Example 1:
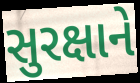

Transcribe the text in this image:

સુરક્ષાને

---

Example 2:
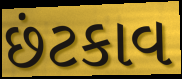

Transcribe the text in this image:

છંટકાવ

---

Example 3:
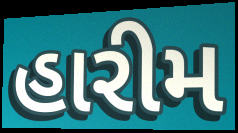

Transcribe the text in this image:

હારીમ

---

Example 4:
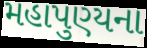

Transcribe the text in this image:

મહાપુણ્યના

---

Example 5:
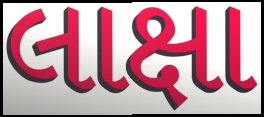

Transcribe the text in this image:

લાક્ષા